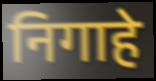
निगाहे